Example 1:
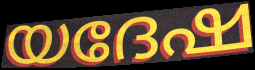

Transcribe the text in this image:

യദേഷ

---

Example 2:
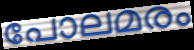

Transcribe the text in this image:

പോലമരം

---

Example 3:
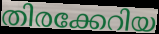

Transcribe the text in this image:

തിരക്കേറിയ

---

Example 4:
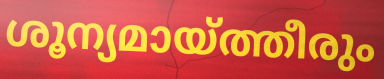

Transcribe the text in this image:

ശൂന്യമായ്ത്തീരും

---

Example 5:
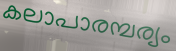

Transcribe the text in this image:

കലാപാരമ്പര്യം